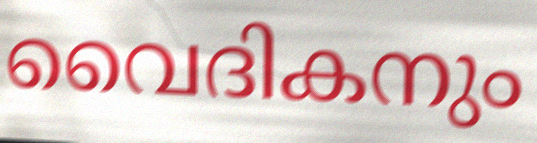
വൈദികനും